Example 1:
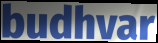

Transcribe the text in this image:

budhvar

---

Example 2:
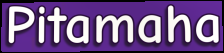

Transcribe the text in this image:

Pitamaha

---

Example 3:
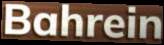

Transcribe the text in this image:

Bahrein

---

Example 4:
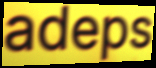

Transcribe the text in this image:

adeps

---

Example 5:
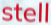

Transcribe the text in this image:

stell